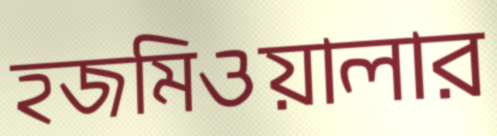
হজমিওয়ালার